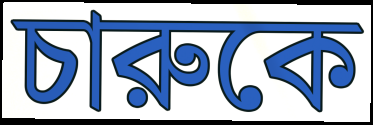
চারুকে